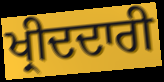
ਖ੍ਰੀਦਦਾਰੀ